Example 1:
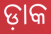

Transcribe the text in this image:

ଡ଼ାକ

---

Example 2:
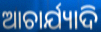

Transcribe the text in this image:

ଆଚାର୍ଯ୍ୟାଦି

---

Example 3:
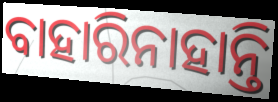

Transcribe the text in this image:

ବାହାରିନାହାନ୍ତି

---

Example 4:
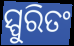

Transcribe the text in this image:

ସ୍ପୁରିତଂ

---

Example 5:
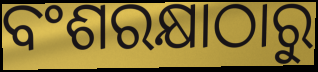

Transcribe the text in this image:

ବଂଶରକ୍ଷାଠାରୁ